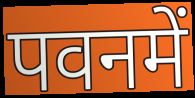
पवनमें